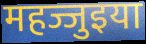
महज्जुइया